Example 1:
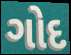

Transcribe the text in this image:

ગોદ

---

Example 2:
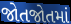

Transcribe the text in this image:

જોતજોતમાં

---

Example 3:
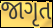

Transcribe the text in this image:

જાગૃત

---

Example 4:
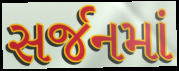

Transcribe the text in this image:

સર્જનમાં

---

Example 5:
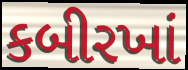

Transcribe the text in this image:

કબીરખાં